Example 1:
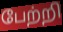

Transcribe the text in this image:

பேற்றி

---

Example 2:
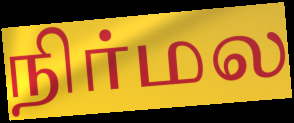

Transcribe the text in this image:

நிர்மல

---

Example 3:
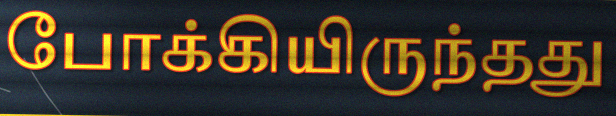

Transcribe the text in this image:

போக்கியிருந்தது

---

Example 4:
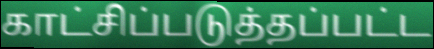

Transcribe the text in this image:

காட்சிப்படுத்தப்பட்ட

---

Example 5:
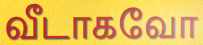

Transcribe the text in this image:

வீடாகவோ